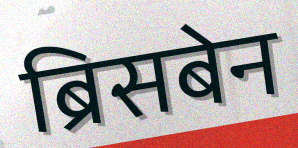
ब्रिसबेन